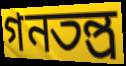
গনতন্ত্র